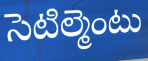
సెటిల్మెంటు